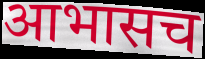
आभासच